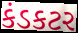
કંડકટર